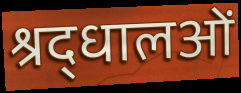
श्रद्धालओं